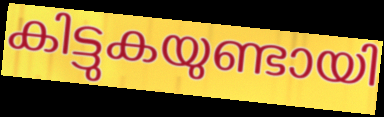
കിട്ടുകയുണ്ടായി